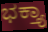
ಭಕ್ತ್ಯಾ